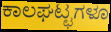
ಕಾಲಘಟ್ಟಗಳೂ